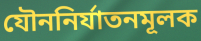
যৌননির্যাতনমূলক